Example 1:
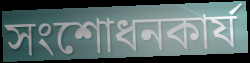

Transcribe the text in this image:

সংশোধনকার্য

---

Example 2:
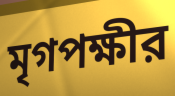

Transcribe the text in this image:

মৃগপক্ষীর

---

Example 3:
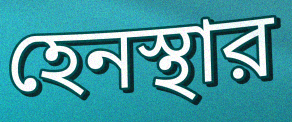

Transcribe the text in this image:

হেনস্থার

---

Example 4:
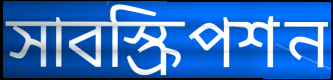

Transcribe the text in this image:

সাবস্ক্রিপশন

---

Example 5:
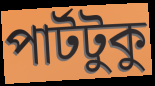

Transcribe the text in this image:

পার্টটুকু